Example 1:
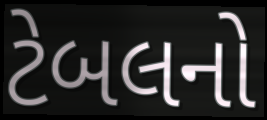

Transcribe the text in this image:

ટેબલનો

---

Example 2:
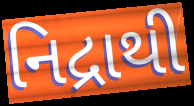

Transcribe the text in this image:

નિદ્રાથી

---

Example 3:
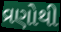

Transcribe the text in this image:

વ્રણોથી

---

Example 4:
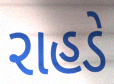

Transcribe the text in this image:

રાહડે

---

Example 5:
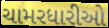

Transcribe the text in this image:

ચામરધારીઓ